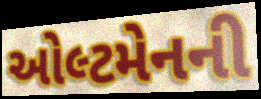
ઓલ્ટમેનની